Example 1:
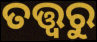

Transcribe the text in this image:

ତତ୍ତ୍ୱରୁ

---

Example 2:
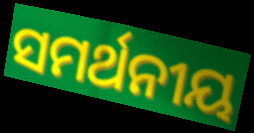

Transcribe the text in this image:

ସମର୍ଥନୀୟ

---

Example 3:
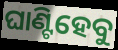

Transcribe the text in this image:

ଘାଣ୍ଟିହେବୁ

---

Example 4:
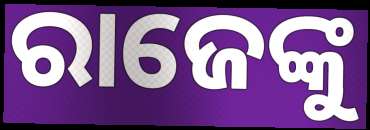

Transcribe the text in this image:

ରାଜେଙ୍କୁ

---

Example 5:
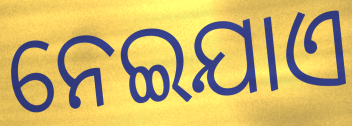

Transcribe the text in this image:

ନେଇଯାଏ